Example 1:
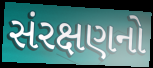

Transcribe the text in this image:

સંરક્ષણનો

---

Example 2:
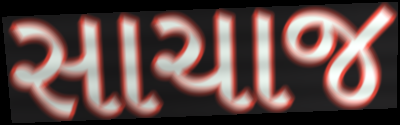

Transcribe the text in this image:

સાચાજ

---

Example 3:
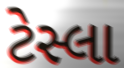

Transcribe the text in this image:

ટેસ્લા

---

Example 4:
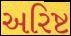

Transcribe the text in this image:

અરિષ્ટ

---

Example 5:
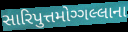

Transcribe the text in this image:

સારિપુત્તમોગ્ગલ્લાના